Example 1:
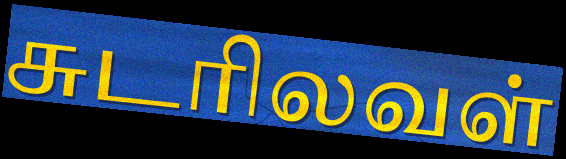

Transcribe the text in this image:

சுடரிலவள்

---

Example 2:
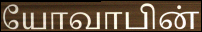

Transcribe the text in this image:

யோவாபின்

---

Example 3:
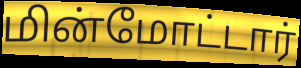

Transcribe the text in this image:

மின்மோட்டார்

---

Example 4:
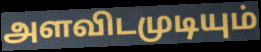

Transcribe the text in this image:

அளவிடமுடியும்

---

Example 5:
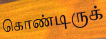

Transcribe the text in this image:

கொண்டிருக்